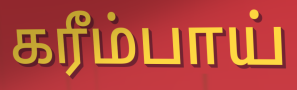
கரீம்பாய்